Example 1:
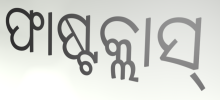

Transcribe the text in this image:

ଫାଷ୍ଟକ୍ଲାସ୍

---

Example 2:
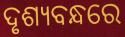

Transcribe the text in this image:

ଦୃଶ୍ୟବନ୍ଧରେ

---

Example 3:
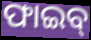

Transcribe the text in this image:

ଫାଇବ୍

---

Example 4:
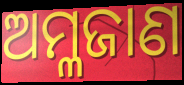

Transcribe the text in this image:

ଅମ୍ଳଜାଣ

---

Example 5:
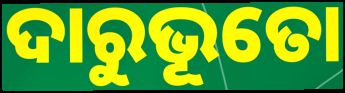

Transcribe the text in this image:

ଦାରୁଭୂତୋ